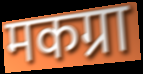
मकग्रा